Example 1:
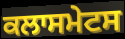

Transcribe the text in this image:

ਕਲਾਸਮੇਟਸ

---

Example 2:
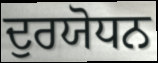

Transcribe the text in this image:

ਦੁਰਯੋਧਨ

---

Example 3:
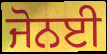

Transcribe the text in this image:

ਜੋਨਈ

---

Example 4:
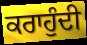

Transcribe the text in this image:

ਕਰਾਹੁੰਦੀ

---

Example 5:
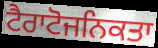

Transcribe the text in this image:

ਟੈਰਾਟੋਜਨਿਕਤਾ